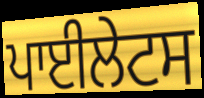
ਪਾਈਲੇਟਸ